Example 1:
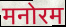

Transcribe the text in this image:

मनोरम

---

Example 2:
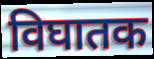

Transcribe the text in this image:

विघातक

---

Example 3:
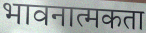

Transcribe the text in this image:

भावनात्मकता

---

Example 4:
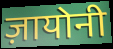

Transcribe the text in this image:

ज़ायोनी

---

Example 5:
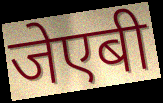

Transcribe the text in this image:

जेएबी